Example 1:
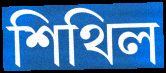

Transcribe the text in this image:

শিথিল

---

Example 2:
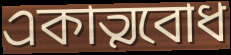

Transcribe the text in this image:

একাত্মবোধ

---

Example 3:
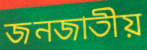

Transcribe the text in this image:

জনজাতীয়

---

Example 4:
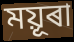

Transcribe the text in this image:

ময়ূৰা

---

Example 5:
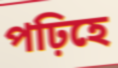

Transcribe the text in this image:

পঢ়িহে